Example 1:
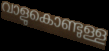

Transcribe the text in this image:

വാളുകൊണ്ടുള്ള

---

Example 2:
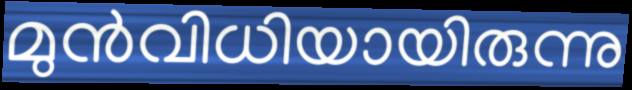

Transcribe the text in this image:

മുൻവിധിയായിരുന്നു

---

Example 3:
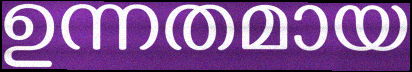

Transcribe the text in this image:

ഉന്നതമായ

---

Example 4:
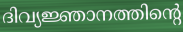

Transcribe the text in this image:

ദിവ്യജ്ഞാനത്തിന്റെ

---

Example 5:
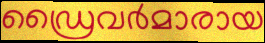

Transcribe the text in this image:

ഡ്രൈവർമാരായ